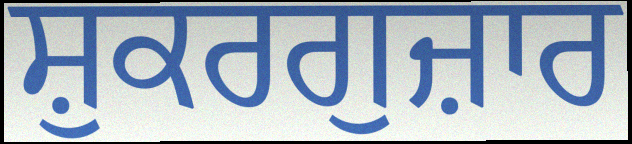
ਸ਼ੁਕਰਗੁਜ਼ਾਰ